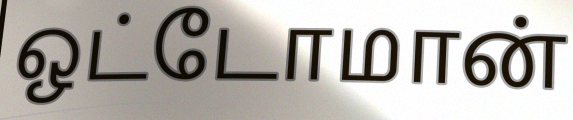
ஒட்டோமான்